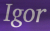
Igor